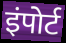
इंपोर्ट